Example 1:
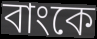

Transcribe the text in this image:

বাংকে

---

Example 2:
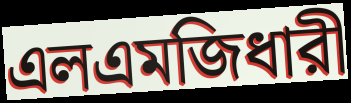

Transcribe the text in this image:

এলএমজিধারী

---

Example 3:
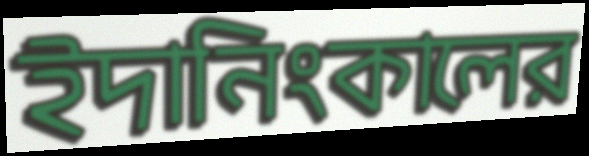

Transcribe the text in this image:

ইদানিংকালের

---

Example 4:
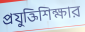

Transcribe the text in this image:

প্রযুক্তিশিক্ষার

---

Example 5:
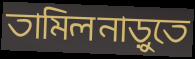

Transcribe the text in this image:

তামিলনাড়ুতে